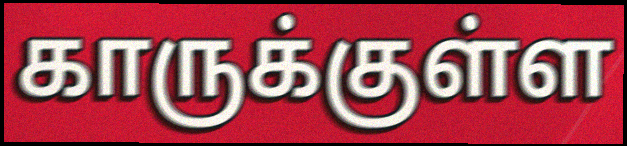
காருக்குள்ள